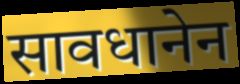
सावधानेन